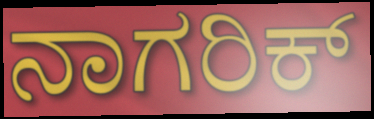
ನಾಗರಿಕ್